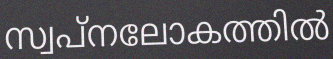
സ്വപ്നലോകത്തിൽ